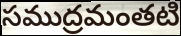
సముద్రమంతటి